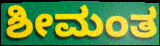
ಶೀಮಂತ